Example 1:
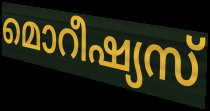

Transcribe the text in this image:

മൊറീഷ്യസ്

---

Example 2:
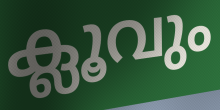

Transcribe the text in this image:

ക്ലൂവും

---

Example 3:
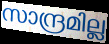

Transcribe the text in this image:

സാന്ദ്രമില്ല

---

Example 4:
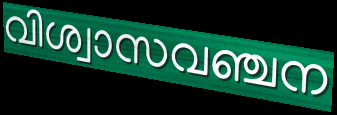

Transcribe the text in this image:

വിശ്വാസവഞ്ചന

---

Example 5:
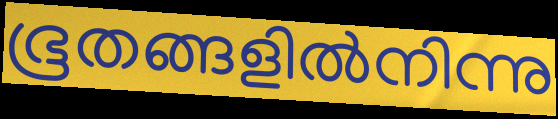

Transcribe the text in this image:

ഭൂതങ്ങളിൽനിന്നു